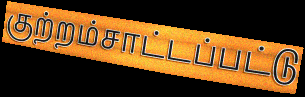
குற்றம்சாட்டப்பட்டு